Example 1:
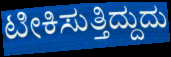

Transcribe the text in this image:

ಟೀಕಿಸುತ್ತಿದ್ದುದು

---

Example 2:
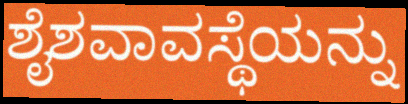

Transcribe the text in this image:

ಶೈಶವಾವಸ್ಥೆಯನ್ನು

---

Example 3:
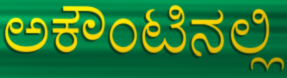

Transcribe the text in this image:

ಅಕೌಂಟಿನಲ್ಲಿ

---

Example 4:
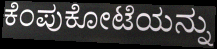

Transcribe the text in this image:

ಕೆಂಪುಕೋಟೆಯನ್ನು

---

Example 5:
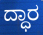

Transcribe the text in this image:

ದ್ಧಾರ